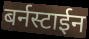
बर्नस्टाईन